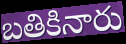
బతికినారు